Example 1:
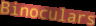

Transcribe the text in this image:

Binoculars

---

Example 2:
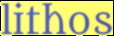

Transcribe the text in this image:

lithos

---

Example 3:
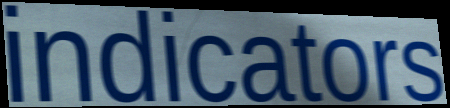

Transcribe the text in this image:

indicators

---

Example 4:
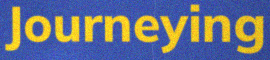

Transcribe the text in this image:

Journeying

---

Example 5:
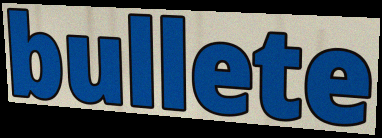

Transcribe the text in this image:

bullete